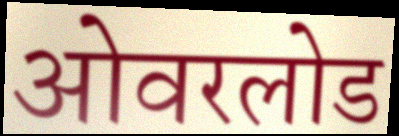
ओवरलोड